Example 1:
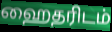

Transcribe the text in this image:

ஹைதரிடம்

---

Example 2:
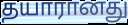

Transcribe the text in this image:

தயாரானது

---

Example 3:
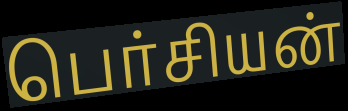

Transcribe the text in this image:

பெர்சியன்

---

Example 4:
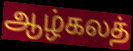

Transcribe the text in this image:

ஆழ்கலத்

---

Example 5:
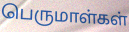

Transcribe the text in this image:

பெருமாள்கள்